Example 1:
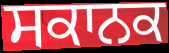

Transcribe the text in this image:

ਸਕਾਨਕ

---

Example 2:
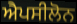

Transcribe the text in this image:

ਐਪਸੀਲੋਨ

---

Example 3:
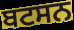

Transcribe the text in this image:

ਬਟਸਨ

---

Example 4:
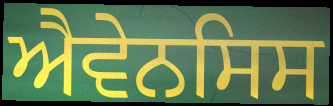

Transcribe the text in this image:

ਐਵੇਨਸਿਸ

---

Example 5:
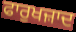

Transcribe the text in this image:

ਫਾਰੁਖਜ਼ਾਦ